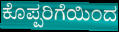
ಕೊಪ್ಪರಿಗೆಯಿಂದ